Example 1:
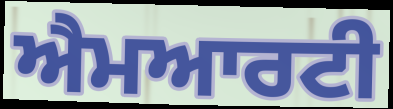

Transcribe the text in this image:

ਐਮਆਰਟੀ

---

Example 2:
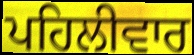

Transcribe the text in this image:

ਪਹਿਲੀਵਾਰ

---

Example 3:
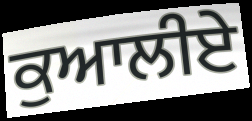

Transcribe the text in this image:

ਕੁਆਲੀਏ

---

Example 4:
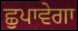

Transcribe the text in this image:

ਛੁਪਾਵੇਗਾ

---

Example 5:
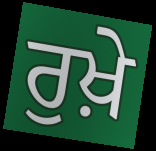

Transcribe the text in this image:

ਰੁਖ਼ੇ